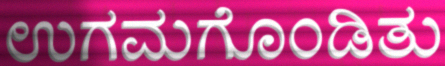
ಉಗಮಗೊಂಡಿತು